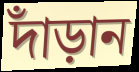
দাঁড়ান